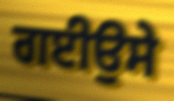
ਗਈਉਸੇ